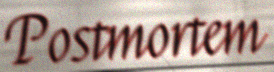
Postmortem